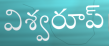
విశ్వరూప్